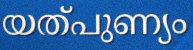
യത്പുണ്യം